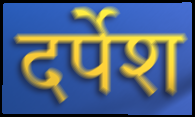
दर्पेश